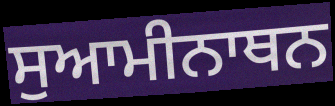
ਸੁਆਮੀਨਾਥਨ